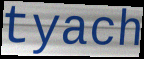
tyach